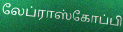
லேப்ராஸ்கோப்பி